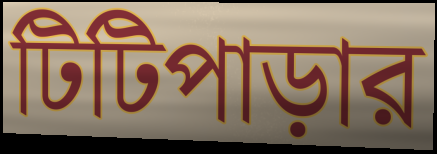
টিটিপাড়ার